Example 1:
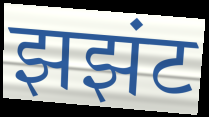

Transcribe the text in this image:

झझंट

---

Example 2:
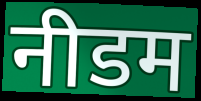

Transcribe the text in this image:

नीडम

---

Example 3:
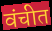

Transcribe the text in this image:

वंचीत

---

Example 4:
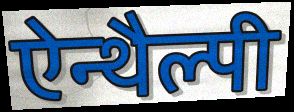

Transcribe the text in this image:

ऐन्थैल्पी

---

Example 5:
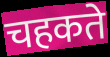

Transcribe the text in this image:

चहकते